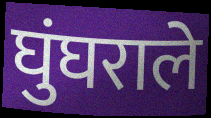
घुंघराले